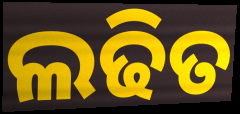
ଲଢିତ